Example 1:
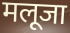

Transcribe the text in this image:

मलूजा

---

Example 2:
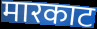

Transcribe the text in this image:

मारकाट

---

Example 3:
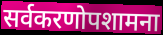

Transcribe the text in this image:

सर्वकरणोपशामना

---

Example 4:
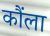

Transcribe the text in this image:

कौंला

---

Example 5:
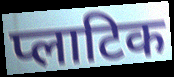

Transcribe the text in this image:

प्लाटिक